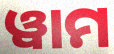
ୱାମ